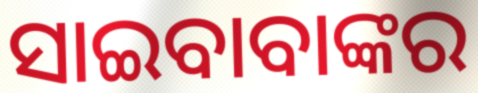
ସାଇବାବାଙ୍କର